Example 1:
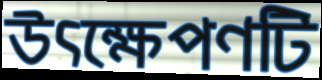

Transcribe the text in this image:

উৎক্ষেপণটি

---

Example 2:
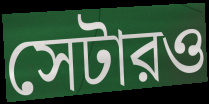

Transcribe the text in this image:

সেটারও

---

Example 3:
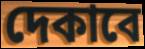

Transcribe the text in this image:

দেকাবে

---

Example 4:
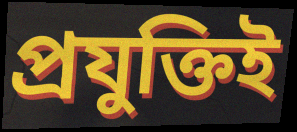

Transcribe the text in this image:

প্রযুক্তিই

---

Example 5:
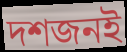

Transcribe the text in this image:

দশজনই